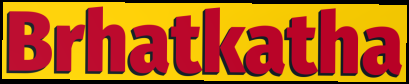
Brhatkatha